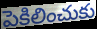
పెకిలించుకు